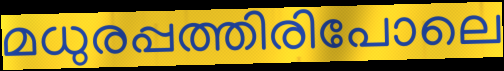
മധുരപ്പത്തിരിപോലെ